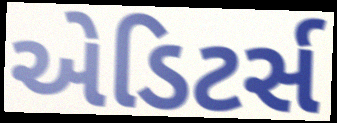
એડિટર્સ